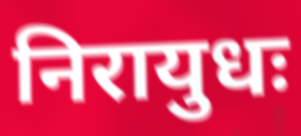
निरायुधः